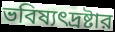
ভবিষ্যৎদ্রষ্টার